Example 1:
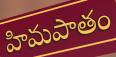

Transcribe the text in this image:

హిమపాతం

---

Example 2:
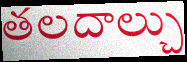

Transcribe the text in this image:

తలదాల్చు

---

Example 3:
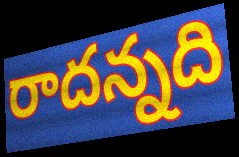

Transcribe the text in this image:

రాదన్నది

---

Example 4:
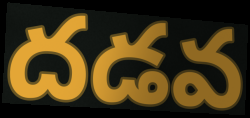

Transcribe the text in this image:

దడవ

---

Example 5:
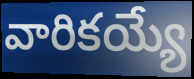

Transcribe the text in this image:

వారికయ్యే